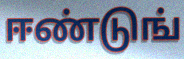
ஈண்டுங்